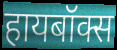
हायबॉक्स